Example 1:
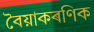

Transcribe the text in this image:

বৈয়াকৰণিক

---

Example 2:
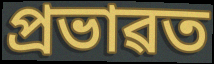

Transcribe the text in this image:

প্ৰভাৱত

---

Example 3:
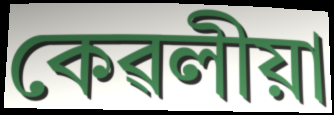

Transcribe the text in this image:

কেৱলীয়া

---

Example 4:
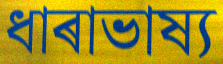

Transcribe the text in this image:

ধাৰাভাষ্য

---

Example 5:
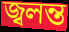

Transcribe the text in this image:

জ্বলন্ত